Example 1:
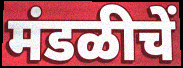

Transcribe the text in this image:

मंडळीचें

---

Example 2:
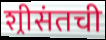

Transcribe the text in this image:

श्रीसंतची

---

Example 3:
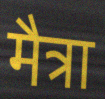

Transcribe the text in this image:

मैत्रा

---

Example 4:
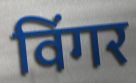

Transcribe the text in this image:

विंगर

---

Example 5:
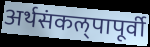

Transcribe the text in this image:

अर्थसंकल्पापूर्वी